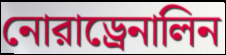
নোরাড্রেনালিন